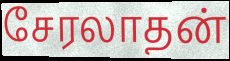
சேரலாதன்